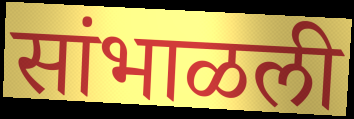
सांभाळली